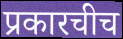
प्रकारचीच